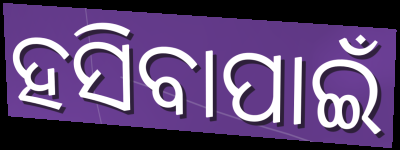
ହସିବାପାଇଁ